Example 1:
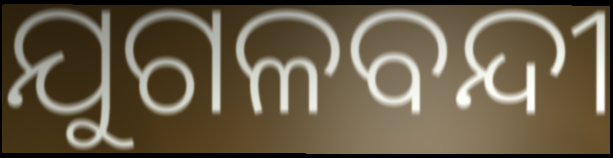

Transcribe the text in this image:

ଯୁଗଳବନ୍ଦୀ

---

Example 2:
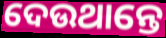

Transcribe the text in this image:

ଦେଉଥାନ୍ତେ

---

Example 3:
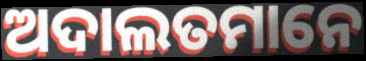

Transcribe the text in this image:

ଅଦାଲତମାନେ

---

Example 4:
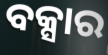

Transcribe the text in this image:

ବକ୍ସାର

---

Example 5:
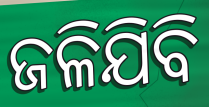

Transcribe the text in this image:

ଜଳିଯିବି